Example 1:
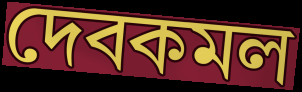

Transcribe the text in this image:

দেবকমল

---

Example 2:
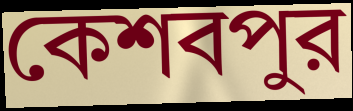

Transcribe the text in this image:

কেশবপুর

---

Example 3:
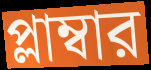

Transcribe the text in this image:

প্লাম্বার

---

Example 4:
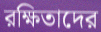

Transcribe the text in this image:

রক্ষিতাদের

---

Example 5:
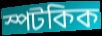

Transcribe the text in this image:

স্পটকিক